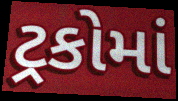
ટ્રકોમાં